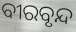
ବୀରବୃନ୍ଦ